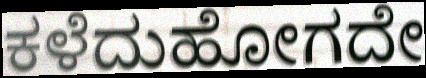
ಕಳೆದುಹೋಗದೇ